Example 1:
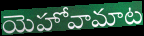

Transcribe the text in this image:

యెహోవామాట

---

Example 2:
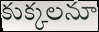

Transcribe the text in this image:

కుక్కలనూ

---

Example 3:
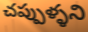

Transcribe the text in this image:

చప్పుళ్ళని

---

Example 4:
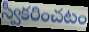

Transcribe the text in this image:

స్వీకరించటం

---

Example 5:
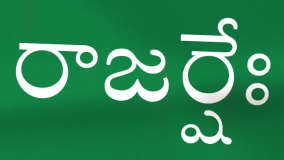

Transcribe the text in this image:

రాజర్షేః